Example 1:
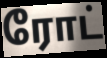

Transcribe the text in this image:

ரோட்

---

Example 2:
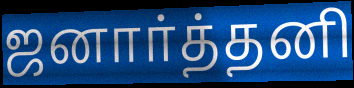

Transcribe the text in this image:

ஜனார்த்தனி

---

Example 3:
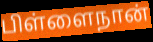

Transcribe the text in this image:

பிள்ளைநான்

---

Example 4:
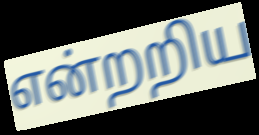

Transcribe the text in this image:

என்றறிய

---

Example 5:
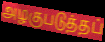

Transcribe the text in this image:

அழகுபடுத்தப்